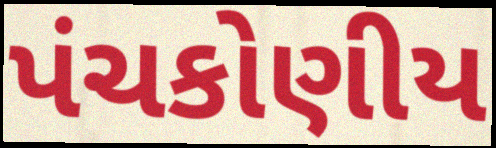
પંચકોણીય